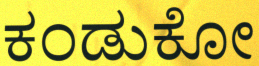
ಕಂಡುಕೋ